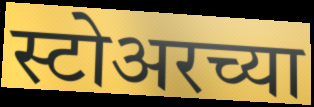
स्टोअरच्या